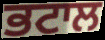
ਭਟਾਲ